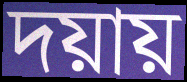
দয়ায়